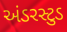
અંડરસ્ટુડ